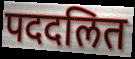
पददलित